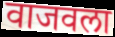
वाजवला